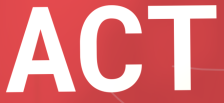
ACT